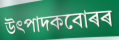
উৎপাদকবোৰৰ